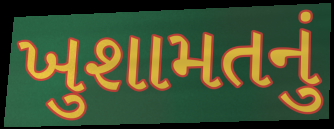
ખુશામતનું